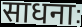
साधनाः